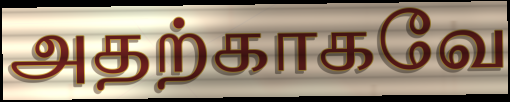
அதற்காகவே